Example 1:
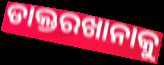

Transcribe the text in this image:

ଡାକ୍ତରଖାନାକୁ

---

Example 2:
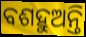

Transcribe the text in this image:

ବଶହୁଅନ୍ତି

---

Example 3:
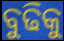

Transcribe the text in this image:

ବୁଢିକୁ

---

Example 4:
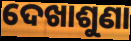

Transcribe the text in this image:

ଦେଖାଶୁଣା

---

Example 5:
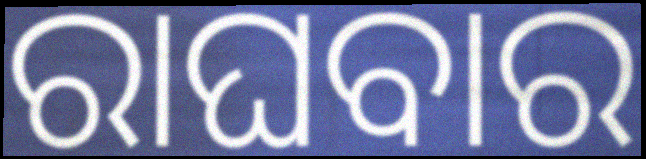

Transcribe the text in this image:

ରାଘବାର